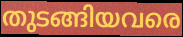
തുടങ്ങിയവരെ